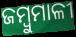
ଜମ୍ବୁମାଳୀ